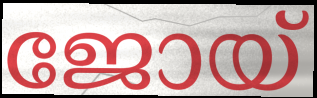
ജോയ്